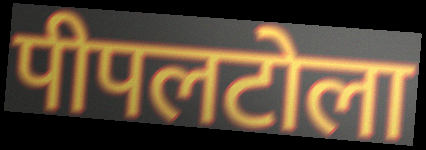
पीपलटोला